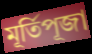
মূৰ্তিপূজা